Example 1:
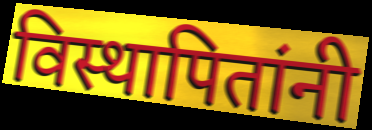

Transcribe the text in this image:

विस्थापितांनी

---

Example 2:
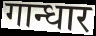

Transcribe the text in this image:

गान्धार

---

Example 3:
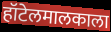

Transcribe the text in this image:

हॉटेलमालकाला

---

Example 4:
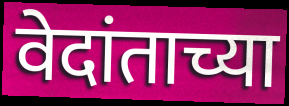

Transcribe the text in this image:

वेदांताच्या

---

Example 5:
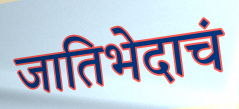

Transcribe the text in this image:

जातिभेदाचं